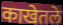
काखेतले